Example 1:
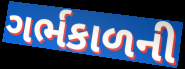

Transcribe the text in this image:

ગર્ભકાળની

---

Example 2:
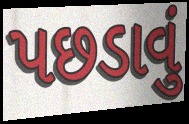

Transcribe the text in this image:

પછડાવું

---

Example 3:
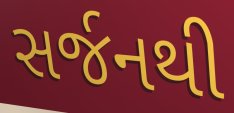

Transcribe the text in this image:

સર્જનથી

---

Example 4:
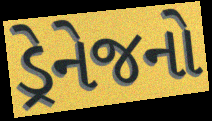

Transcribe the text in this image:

ડ્રેનેજનો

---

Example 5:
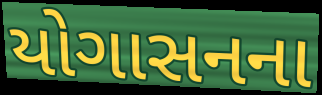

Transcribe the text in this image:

યોગાસનના